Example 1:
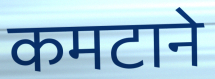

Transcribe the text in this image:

कमटाने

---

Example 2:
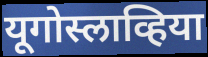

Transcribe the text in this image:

यूगोस्लाव्हिया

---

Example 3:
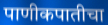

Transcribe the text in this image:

पाणीकपातीचा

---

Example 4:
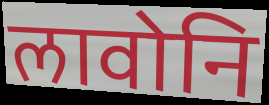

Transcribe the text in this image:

लावोनि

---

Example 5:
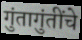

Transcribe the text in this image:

गुंतागुंतींचे